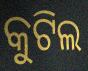
କୁଟିଲ